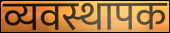
व्यवस्थापक